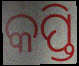
କପ୍ତି